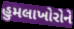
હુમલાખોરોને